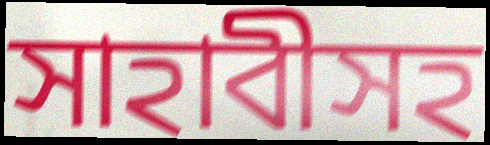
সাহাবীসহ